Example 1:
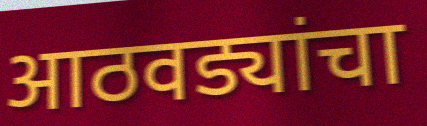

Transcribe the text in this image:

आठवड्यांचा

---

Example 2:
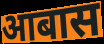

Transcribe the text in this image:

आबास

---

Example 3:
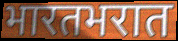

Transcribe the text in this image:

भारतभरात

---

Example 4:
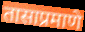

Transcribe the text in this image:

तासाप्रमाणे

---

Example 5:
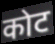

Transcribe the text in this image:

कोट